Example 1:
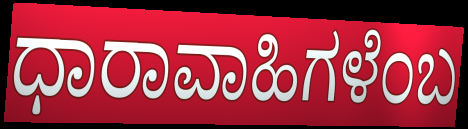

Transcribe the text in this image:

ಧಾರಾವಾಹಿಗಳೆಂಬ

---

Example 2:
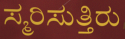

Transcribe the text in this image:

ಸ್ಮರಿಸುತ್ತಿರು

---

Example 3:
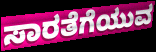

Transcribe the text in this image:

ಸಾರತೆಗೆಯುವ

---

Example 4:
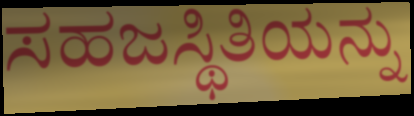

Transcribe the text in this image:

ಸಹಜಸ್ಥಿತಿಯನ್ನು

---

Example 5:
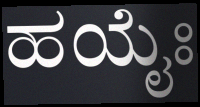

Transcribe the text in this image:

ಹಯೈಃ